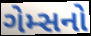
ગેમ્સનો